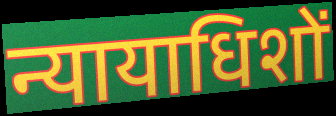
न्यायाधिशों